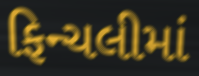
ફિન્ચલીમાં